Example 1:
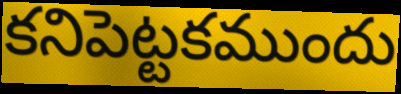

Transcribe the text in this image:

కనిపెట్టకముందు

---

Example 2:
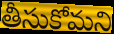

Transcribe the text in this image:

తీసుకోమని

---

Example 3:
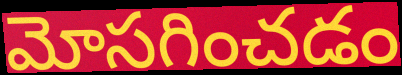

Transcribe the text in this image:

మోసగించడం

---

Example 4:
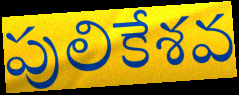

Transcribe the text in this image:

పులికేశవ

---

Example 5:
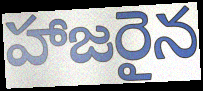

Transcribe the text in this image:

హాజరైన